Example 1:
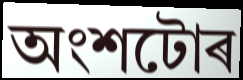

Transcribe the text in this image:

অংশটোৰ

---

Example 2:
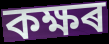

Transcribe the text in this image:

কক্ষৰ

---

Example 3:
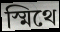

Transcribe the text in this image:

স্মিথে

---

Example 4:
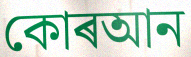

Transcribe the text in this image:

কোৰআন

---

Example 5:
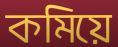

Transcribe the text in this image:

কমিয়ে